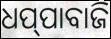
ଧପ୍‌ପାବାଜି